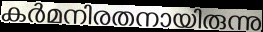
കർമനിരതനായിരുന്നു